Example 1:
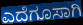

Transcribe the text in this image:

ಎದೆಗೂಸಾಗಿ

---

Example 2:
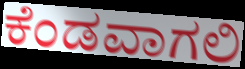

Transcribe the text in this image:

ಕೆಂಡವಾಗಲಿ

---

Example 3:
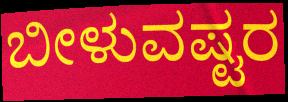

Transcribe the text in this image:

ಬೀಳುವಷ್ಟರ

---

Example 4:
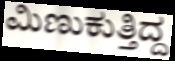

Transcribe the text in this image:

ಮಿಣುಕುತ್ತಿದ್ದ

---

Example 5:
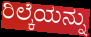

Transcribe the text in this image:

ರಿಲ್ಕೆಯನ್ನು